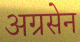
अग्रसेन